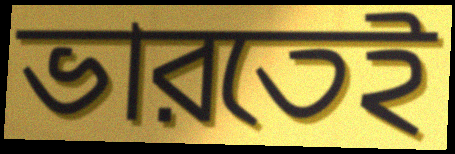
ভারতেই